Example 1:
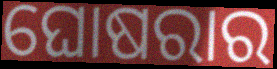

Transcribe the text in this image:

ଘୋଷରାର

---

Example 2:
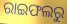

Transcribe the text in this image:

ରାଇଫଲରୁ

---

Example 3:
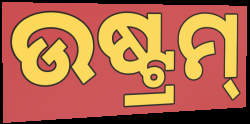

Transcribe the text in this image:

ଉଷ୍ଟ୍ରମ୍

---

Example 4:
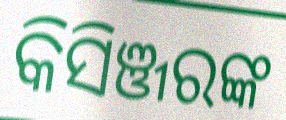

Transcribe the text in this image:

କିସିଞ୍ଜରଙ୍କ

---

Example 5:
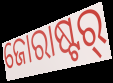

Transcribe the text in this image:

ଜୋରାଷ୍ଟର୍